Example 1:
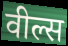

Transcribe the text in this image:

वील्स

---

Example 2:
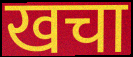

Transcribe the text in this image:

खचा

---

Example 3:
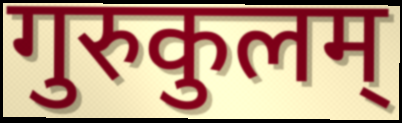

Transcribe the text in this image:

गुरुकुलम्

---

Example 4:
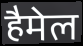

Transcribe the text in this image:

हैमेल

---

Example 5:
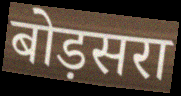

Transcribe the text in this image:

बोड़सरा